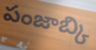
పంజాబ్కి